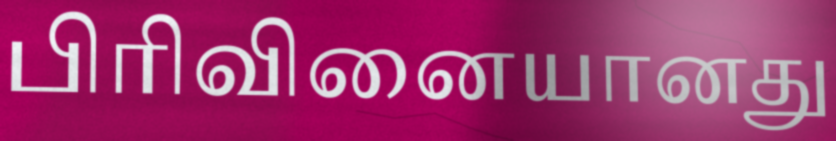
பிரிவினையானது